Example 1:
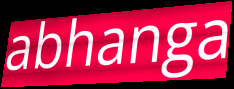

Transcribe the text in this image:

abhanga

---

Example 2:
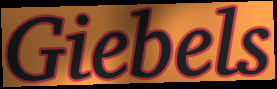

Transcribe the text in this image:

Giebels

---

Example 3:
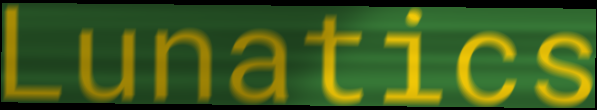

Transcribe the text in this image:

Lunatics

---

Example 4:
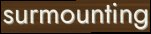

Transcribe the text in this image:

surmounting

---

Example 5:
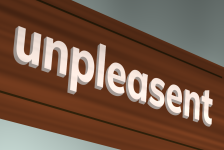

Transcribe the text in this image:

unpleasent